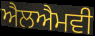
ਐਲਐਮਵੀ